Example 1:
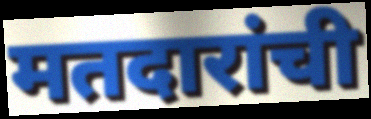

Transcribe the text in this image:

मतदारांची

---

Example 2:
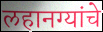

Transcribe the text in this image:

लहानग्यांचे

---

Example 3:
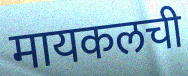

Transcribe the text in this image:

मायकलची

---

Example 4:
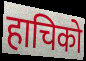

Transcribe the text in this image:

हाचिको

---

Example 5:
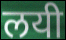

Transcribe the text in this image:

लयी